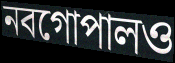
নবগোপালও